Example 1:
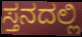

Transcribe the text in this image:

ಸ್ತನದಲ್ಲಿ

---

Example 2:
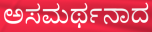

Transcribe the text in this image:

ಅಸಮರ್ಥನಾದ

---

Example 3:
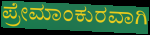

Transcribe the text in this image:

ಪ್ರೇಮಾಂಕುರವಾಗಿ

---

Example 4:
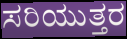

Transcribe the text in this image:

ಸರಿಯುತ್ತರ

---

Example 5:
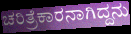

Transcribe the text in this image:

ಚರಿತ್ರೆಕಾರನಾಗಿದ್ದನು